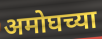
अमोघच्या